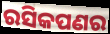
ରସିକପଣର